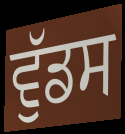
ਵੁੱਡਸ